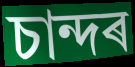
চান্দৰ